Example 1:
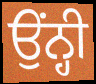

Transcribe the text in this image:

ਉਂਨ੍ਹੀ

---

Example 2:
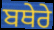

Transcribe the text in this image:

ਬਥੇਰੇ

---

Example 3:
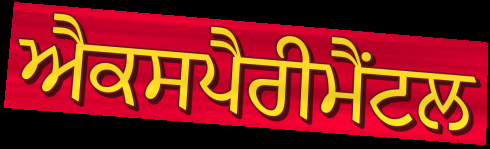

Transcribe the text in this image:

ਐਕਸਪੈਰੀਮੈਂਟਲ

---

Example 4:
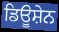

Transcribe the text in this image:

ਡਿਊਸ਼ੇਨ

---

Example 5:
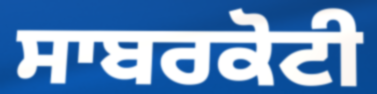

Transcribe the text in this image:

ਸਾਬਰਕੋਟੀ